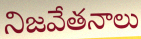
నిజవేతనాలు